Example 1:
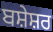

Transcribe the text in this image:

ਬਸ਼ੇਸ਼ਰ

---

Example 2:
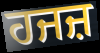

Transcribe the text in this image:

ਹਜਜ਼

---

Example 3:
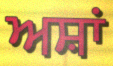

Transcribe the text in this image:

ਅਸ਼ਾਂ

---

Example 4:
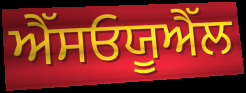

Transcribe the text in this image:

ਐੱਸਓਯੂਐੱਲ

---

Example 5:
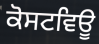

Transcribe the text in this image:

ਕੋਸਟਵਿਊ